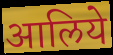
आलिये